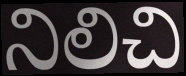
నిలిచి